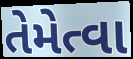
તેમેત્વા